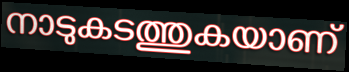
നാടുകടത്തുകയാണ്